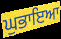
ਘੁਭਾਇਆ